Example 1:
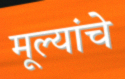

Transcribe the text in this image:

मूल्यांचे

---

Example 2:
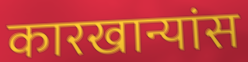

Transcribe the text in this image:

कारखान्यांस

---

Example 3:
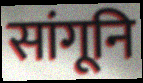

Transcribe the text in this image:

सांगूनि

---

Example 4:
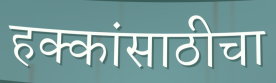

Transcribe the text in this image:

हक्कांसाठीचा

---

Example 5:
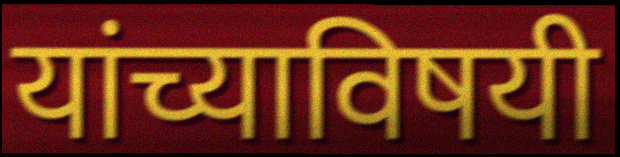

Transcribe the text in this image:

यांच्याविषयी